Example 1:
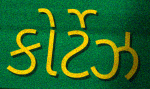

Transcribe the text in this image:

કોર્ટેઝ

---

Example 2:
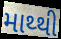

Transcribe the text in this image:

માથ્થી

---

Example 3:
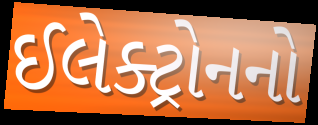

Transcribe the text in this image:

ઈલેક્ટ્રોનનો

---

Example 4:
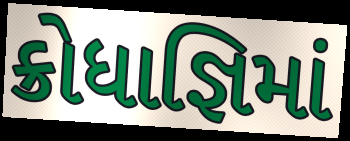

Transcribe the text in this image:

ક્રોધાજ્ઞિમાં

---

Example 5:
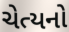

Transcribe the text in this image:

ચેત્યનો